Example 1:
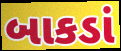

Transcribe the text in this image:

બાકડાં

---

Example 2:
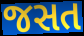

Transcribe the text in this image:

જસત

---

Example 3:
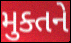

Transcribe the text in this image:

મુક્તને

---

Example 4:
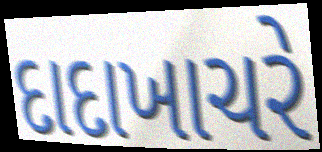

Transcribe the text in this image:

દાદાખાચરે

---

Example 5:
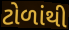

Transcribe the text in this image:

ટોળાંથી